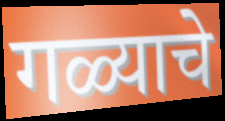
गळ्याचे